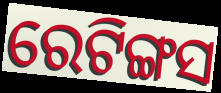
ରେଟିଙ୍ଗସ